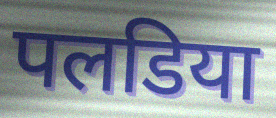
पलडिया